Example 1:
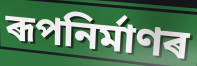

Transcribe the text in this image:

ৰূপনিৰ্মাণৰ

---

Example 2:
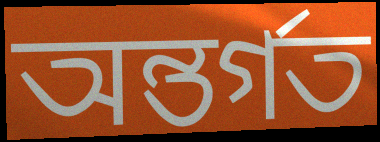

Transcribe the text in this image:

অন্তৰ্গত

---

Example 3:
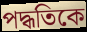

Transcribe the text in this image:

পদ্ধতিকে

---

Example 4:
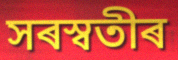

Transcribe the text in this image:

সৰস্বতীৰ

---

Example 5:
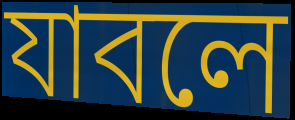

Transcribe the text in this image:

যাবলে